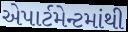
એપાર્ટમેન્ટમાંથી